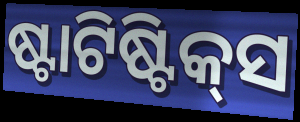
ଷ୍ଟାଟିଷ୍ଟିକ୍‍ସ